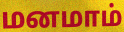
மனமாம்